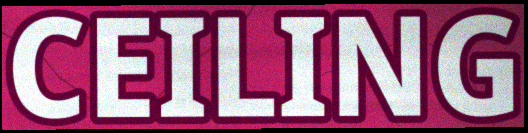
CEILING